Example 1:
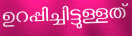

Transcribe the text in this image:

ഉറപ്പിച്ചിട്ടുള്ളത്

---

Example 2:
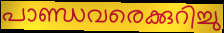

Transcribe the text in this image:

പാണ്ഡവരെക്കുറിച്ചു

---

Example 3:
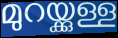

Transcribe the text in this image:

മുറയ്ക്കുള്ള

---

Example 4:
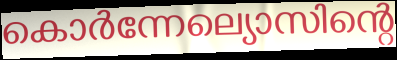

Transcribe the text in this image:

കൊർന്നേല്യൊസിന്റെ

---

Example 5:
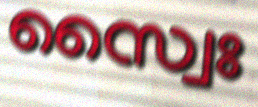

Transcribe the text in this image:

സ്വൈഃ